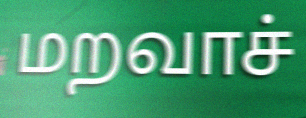
மறவாச்